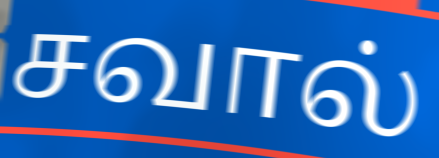
சவால்